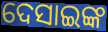
ଦେସାଇଙ୍କ